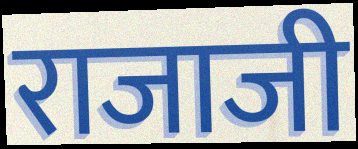
राजाजी